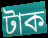
টাক